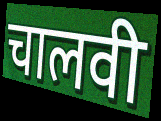
चालवी